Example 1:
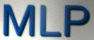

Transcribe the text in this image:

MLP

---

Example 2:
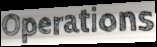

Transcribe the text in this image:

Operations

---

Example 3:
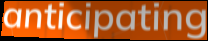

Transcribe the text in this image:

anticipating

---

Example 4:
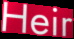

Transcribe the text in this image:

Heir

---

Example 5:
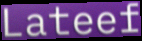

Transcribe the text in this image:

Lateef